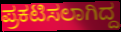
ಪ್ರಕಟಿಸಲಾಗಿದ್ದ